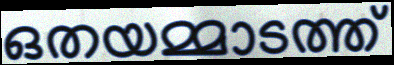
ഒതയമ്മാടത്ത്